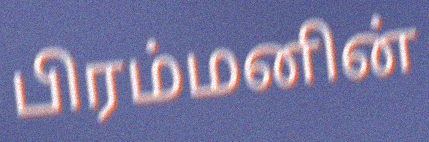
பிரம்மனின்